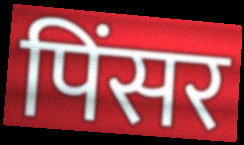
पिंसर